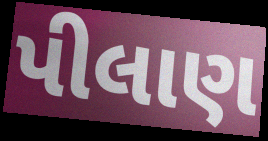
પીલાણ